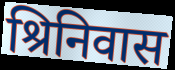
श्रिनिवास